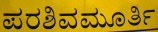
ಪರಶಿವಮೂರ್ತಿ